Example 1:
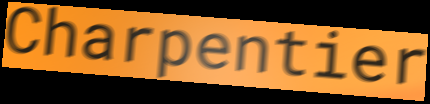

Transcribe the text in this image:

Charpentier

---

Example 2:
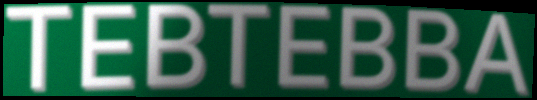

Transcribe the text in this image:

TEBTEBBA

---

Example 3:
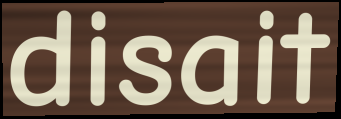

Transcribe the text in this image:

disait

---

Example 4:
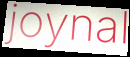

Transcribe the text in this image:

joynal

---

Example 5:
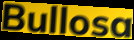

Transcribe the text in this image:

Bullosa